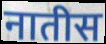
नातीस